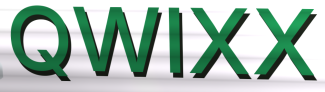
QWIXX